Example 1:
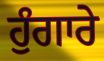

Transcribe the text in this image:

ਹੁੰਗਾਰੇ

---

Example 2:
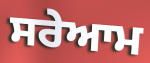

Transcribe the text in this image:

ਸਰੇਆਮ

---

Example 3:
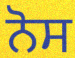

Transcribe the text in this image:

ਨੋਸ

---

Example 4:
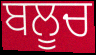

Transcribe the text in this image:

ਬਲੂਚ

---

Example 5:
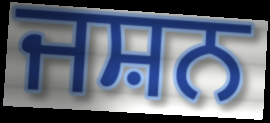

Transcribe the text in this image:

ਜਸ਼ਨ